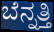
ಬೆನ್ನತ್ತಿ